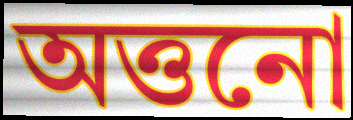
অত্তনো